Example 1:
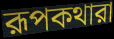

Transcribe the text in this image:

রূপকথারা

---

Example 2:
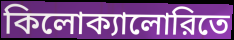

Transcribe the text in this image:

কিলোক্যালোরিতে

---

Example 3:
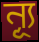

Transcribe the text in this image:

ন্যূ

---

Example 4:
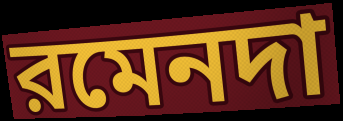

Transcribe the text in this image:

রমেনদা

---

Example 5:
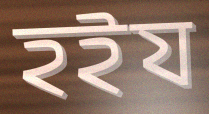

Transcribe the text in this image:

হইয